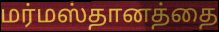
மர்மஸ்தானத்தை